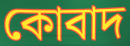
কোবাদ